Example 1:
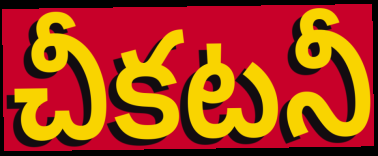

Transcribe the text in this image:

చీకటనీ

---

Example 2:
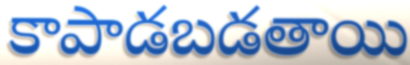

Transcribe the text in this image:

కాపాడబడతాయి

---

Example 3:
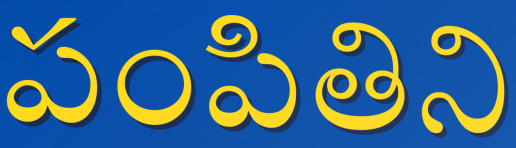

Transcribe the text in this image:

పంపితిని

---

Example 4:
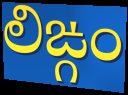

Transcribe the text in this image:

లిఙ్గం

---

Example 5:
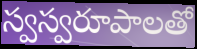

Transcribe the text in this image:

స్వస్వరూపాలతో